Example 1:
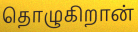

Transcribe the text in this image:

தொழுகிறான்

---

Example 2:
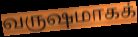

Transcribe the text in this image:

வருஷமாகக்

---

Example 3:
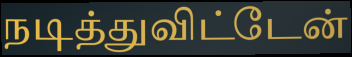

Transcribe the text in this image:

நடித்துவிட்டேன்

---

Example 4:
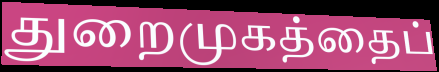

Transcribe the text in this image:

துறைமுகத்தைப்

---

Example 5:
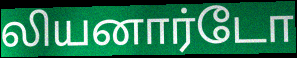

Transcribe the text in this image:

லியனார்டோ